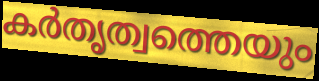
കർതൃത്വത്തെയും